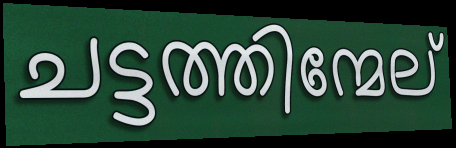
ചട്ടത്തിന്മേല്